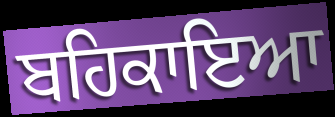
ਬਹਿਕਾਇਆ